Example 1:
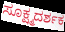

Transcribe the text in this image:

ಸೂಕ್ಷ್ಮದರ್ಶಕ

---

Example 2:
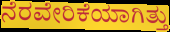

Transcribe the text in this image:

ನೆರವೇರಿಕೆಯಾಗಿತ್ತು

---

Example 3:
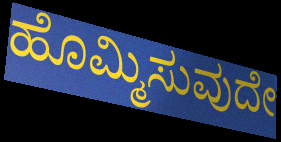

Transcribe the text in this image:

ಹೊಮ್ಮಿಸುವುದೇ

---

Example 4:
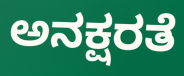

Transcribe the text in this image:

ಅನಕ್ಷರತೆ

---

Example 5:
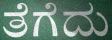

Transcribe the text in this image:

ತೆಗೆದು